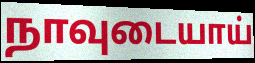
நாவுடையாய்